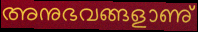
അനുഭവങ്ങളാണു്